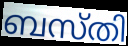
ബസ്തി